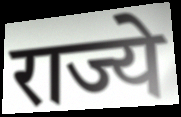
राज्ये